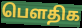
பௌதிக